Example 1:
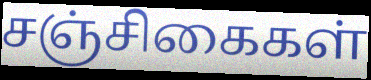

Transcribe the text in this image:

சஞ்சிகைகள்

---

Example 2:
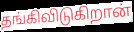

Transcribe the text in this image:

தங்கிவிடுகிறான்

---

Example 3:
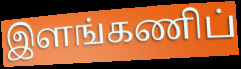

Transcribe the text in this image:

இளங்கணிப்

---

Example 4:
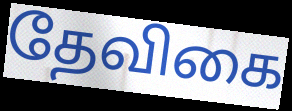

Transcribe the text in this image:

தேவிகை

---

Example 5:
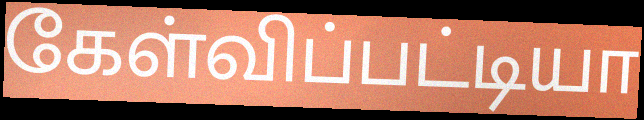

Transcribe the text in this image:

கேள்விப்பட்டியா